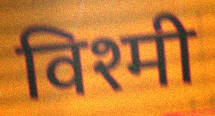
विश्मी